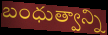
బంధుత్వాన్ని